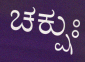
ಚಕ್ಷುಃ